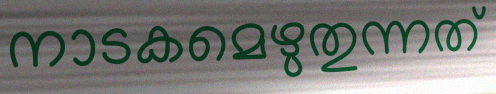
നാടകമെഴുതുന്നത്